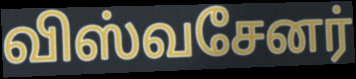
விஸ்வசேனர்